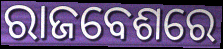
ରାଜବେଶରେ